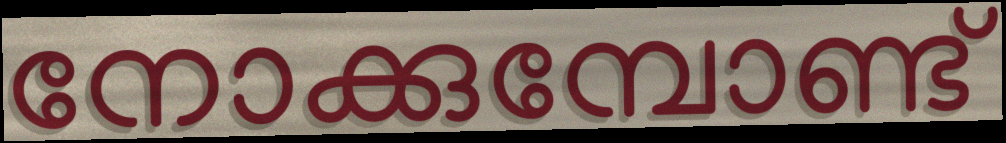
നോക്കുമ്പോണ്ട്